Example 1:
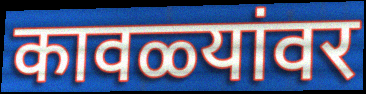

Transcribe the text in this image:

कावळ्यांवर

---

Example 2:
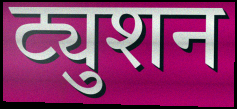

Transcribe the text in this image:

ट्युशन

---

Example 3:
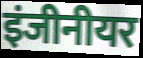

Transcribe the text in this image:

इंजीनीयर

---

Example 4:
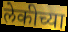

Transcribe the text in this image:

लेकीच्या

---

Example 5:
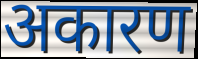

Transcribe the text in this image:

अकारण